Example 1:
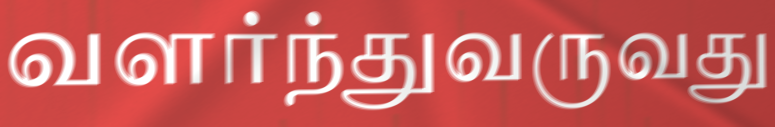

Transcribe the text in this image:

வளர்ந்துவருவது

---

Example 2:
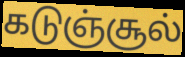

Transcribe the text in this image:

கடுஞ்சூல்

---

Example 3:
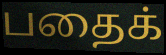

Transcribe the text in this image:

பதைக்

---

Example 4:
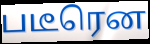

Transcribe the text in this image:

படீரென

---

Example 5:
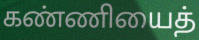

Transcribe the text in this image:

கண்ணியைத்